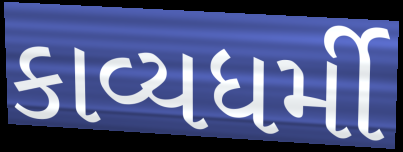
કાવ્યધર્મી